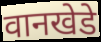
वानखेडे